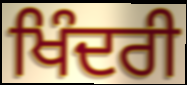
ਖਿੰਦਰੀ